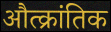
औत्क्रांतिक